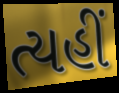
ત્યહીં